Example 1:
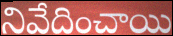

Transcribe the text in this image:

నివేదించాయి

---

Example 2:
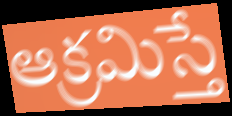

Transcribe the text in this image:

ఆక్రమిస్తే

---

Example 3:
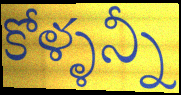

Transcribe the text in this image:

కోళ్ళన్నీ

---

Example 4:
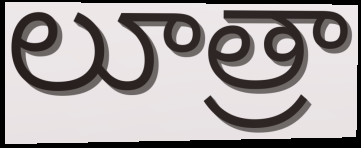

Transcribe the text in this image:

లూత్రా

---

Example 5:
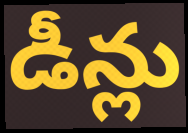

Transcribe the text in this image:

డీన్లు